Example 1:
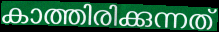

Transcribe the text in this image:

കാത്തിരിക്കുന്നത്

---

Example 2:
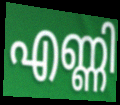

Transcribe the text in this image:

എണ്ണി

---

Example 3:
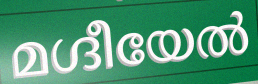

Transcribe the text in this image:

മഗ്ദീയേൽ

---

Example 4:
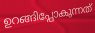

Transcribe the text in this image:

ഉറങ്ങിപ്പോകുന്നത്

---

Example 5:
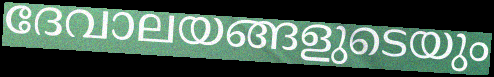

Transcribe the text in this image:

ദേവാലയങ്ങളുടെയും